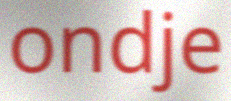
ondje